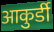
आकुर्डी